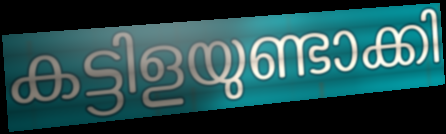
കട്ടിളയുണ്ടാക്കി